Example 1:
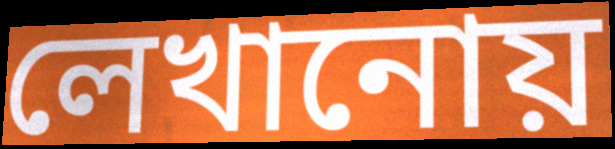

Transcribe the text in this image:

লেখানোয়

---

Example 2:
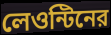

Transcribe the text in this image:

লেওন্টিনের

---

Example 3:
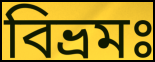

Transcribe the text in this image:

বিভ্রমঃ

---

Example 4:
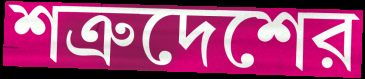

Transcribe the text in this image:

শত্রুদেশের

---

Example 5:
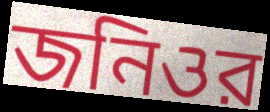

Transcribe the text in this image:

জনিওর